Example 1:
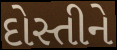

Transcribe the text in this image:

દોસ્તીને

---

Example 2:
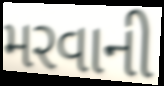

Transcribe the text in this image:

મરવાની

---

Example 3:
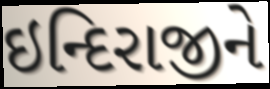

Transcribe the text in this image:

ઇન્દિરાજીને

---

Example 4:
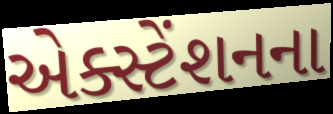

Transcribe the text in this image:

એક્સ્ટેંશનના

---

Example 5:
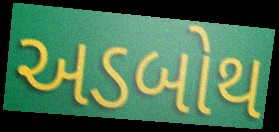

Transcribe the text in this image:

અડબોથ